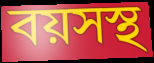
বয়সস্থ